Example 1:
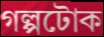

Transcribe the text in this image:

গল্পটোক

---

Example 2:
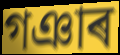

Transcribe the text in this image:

গঞাৰ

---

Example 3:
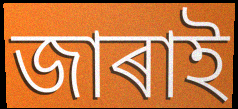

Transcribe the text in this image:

জাৰাই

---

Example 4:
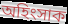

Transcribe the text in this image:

অহিংসাক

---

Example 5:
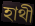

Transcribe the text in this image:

হাথী